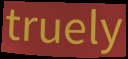
truely